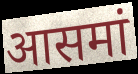
आसमां